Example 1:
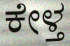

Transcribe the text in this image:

ಕೇಳ್ತ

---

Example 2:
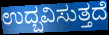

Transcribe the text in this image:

ಉದ್ಬವಿಸುತ್ತದೆ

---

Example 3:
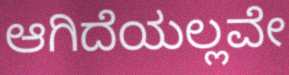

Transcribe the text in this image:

ಆಗಿದೆಯಲ್ಲವೇ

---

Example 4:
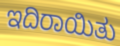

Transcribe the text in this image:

ಇದಿರಾಯಿತು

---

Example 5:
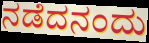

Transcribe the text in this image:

ನಡೆದನಂದು